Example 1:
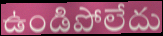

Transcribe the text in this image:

ఉండిపోలేదు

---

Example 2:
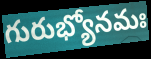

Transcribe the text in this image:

గురుభ్యోనమః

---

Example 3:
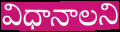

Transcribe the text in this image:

విధానాలని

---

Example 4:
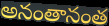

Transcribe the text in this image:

అనంతానంత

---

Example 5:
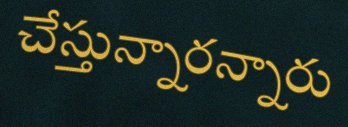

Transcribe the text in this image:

చేస్తున్నారన్నారు